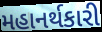
મહાનર્થકારી